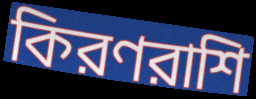
কিরণরাশি